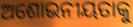
ଅଶୋଭନୀୟତାକୁ